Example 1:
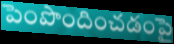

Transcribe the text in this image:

పెంపొందించడంపై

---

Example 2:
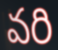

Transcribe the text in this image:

వరి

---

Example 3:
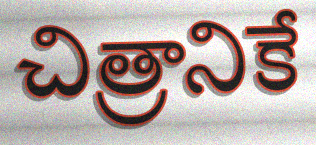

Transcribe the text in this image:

చిత్రానికే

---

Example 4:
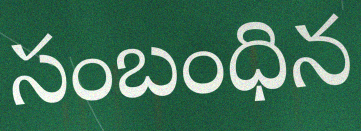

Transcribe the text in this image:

సంబంధిన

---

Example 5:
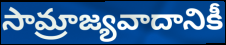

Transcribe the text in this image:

సామ్రాజ్యవాదానికీ